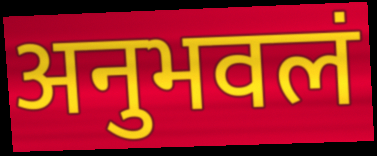
अनुभवलं